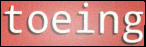
toeing